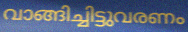
വാങ്ങിച്ചിട്ടുവരണം